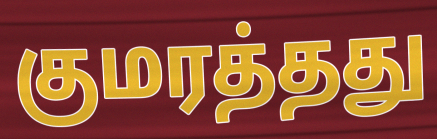
குமரத்தது